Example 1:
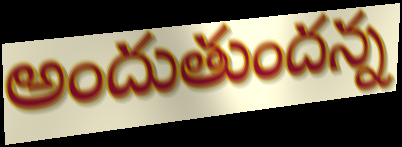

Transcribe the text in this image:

అందుతుందన్న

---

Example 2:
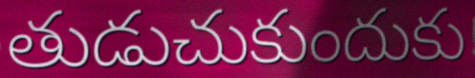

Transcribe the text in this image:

తుడుచుకుందుకు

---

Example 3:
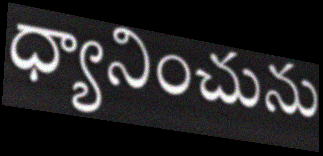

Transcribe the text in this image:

ధ్యానించును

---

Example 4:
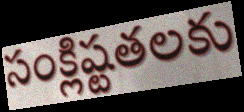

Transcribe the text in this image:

సంక్లిష్టతలకు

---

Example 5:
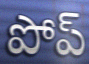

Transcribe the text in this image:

పోప్